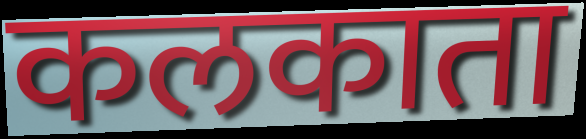
कलकाता